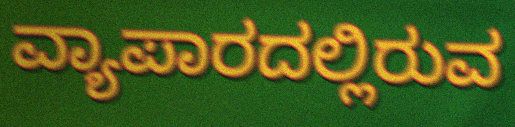
ವ್ಯಾಪಾರದಲ್ಲಿರುವ